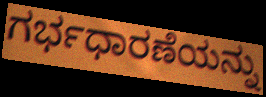
ಗರ್ಭಧಾರಣೆಯನ್ನು